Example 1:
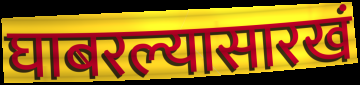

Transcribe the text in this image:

घाबरल्यासारखं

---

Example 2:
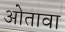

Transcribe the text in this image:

ओतावा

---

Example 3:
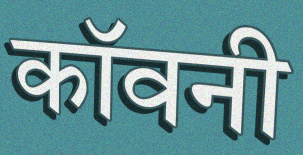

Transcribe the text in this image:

कॉवनी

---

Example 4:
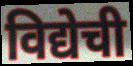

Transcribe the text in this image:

विद्येची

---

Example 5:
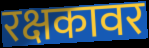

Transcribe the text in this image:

रक्षकावर